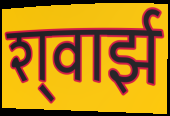
श्वार्झ